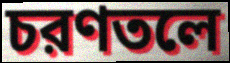
চরণতলে